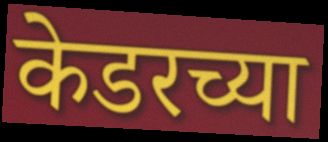
केडरच्या